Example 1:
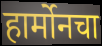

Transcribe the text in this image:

हार्मोनचा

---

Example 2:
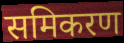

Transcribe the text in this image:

समिकरण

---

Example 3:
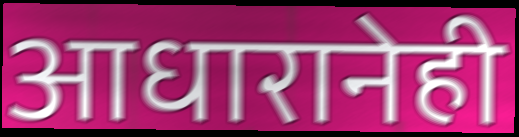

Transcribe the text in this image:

आधारानेही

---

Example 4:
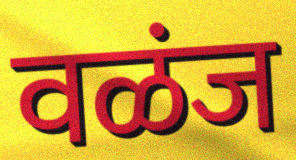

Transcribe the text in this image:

वळंज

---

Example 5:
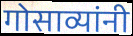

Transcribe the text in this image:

गोसाव्यांनी